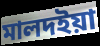
মালদইয়া